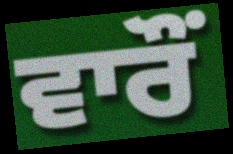
ਵਾਰੌਂ